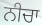
ਨੀਚਾ